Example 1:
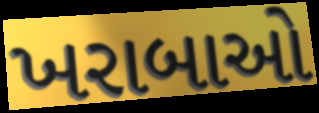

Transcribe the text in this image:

ખરાબાઓ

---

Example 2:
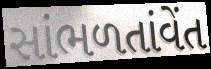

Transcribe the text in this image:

સાંભળતાંવેંત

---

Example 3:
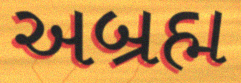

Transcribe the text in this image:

અબ્રહ્મ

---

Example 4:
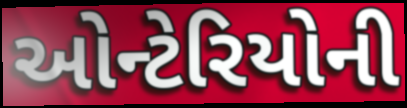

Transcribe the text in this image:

ઓન્ટેરિયોની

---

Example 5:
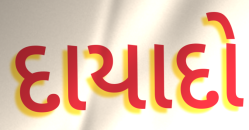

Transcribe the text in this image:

દાયાદો